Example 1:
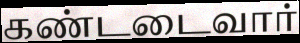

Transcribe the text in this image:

கண்டடைவார்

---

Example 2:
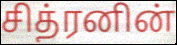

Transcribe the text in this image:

சித்ரனின்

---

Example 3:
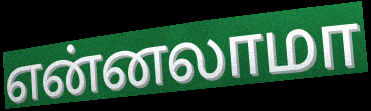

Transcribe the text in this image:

என்னலாமா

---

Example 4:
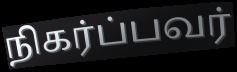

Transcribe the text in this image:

நிகர்ப்பவர்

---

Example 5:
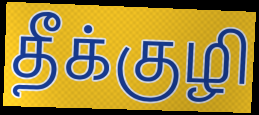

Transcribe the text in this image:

தீக்குழி